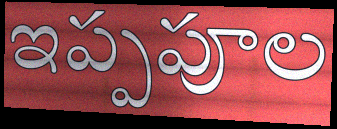
ఇప్పపూల